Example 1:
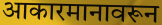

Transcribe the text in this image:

आकारमानावरून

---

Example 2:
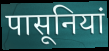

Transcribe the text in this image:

पासूनियां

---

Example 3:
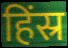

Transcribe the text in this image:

हिंस्र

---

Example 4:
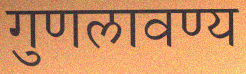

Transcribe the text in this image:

गुणलावण्य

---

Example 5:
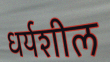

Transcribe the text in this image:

धर्यशील